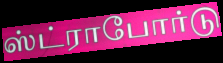
ஸ்ட்ராபோர்டு